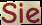
Sie